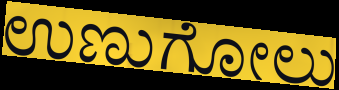
ಉಣುಗೋಲು